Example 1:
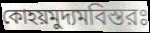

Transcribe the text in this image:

কোহয়মুদ্যমবিস্তরঃ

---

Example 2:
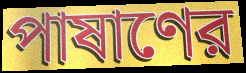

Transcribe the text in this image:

পাষাণের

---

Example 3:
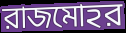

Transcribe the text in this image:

রাজমোহর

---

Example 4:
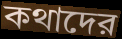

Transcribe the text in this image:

কথাদের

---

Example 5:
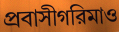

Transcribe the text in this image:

প্রবাসীগরিমাও